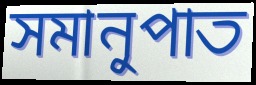
সমানুপাত